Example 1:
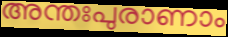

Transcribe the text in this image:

അന്തഃപുരാണാം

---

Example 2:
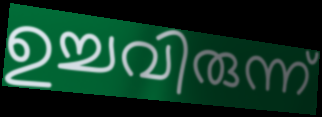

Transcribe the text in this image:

ഉച്ചവിരുന്ന്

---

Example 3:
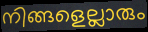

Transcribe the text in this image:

നിങ്ങളെല്ലാരും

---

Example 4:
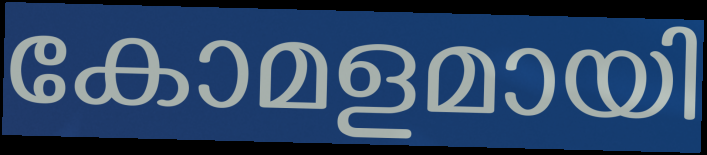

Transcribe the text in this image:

കോമളമായി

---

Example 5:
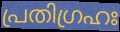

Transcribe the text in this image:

പ്രതിഗ്രഹഃ